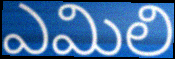
ఎమిలి